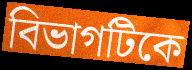
বিভাগটিকে